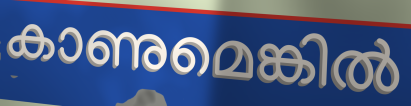
കാണുമെങ്കിൽ